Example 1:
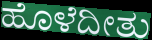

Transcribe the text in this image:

ಹೊಳೆದೀತು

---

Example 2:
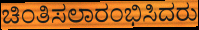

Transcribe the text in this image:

ಚಿಂತಿಸಲಾರಂಭಿಸಿದರು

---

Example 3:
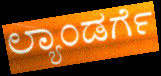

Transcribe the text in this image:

ಲ್ಯಾಂಡರ್ಗೆ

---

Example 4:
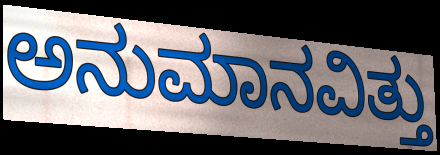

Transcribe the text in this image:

ಅನುಮಾನವಿತ್ತು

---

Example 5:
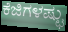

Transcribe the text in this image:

ಕೆಜಿಗಳಷ್ಟು